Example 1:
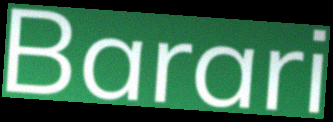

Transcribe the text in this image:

Barari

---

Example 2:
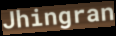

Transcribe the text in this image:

Jhingran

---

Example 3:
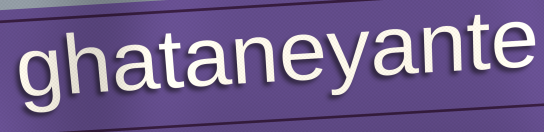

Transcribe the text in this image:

ghataneyante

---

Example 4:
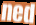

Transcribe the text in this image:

ned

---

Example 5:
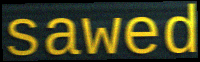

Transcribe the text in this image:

sawed